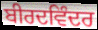
ਬੀਰਦਵਿੰਦਰ